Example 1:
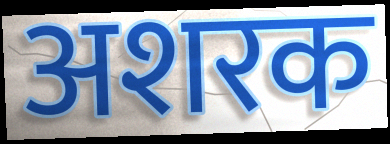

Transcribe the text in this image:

अशरक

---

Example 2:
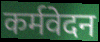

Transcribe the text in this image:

कर्मवेदन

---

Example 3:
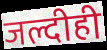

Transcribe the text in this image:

जल्दीही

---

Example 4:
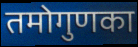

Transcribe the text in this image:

तमोगुणका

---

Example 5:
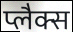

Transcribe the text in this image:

प्लैक्स